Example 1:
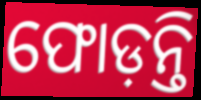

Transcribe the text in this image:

ଫୋଡ଼ନ୍ତି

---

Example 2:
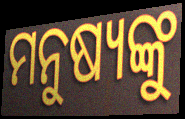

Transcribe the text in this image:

ମନୁଷ୍ୟଙ୍କୁ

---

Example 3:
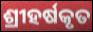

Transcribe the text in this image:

ଶ୍ରୀହର୍ଷକୃତ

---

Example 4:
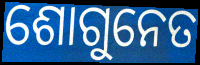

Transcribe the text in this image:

ଶୋଗୁନେତ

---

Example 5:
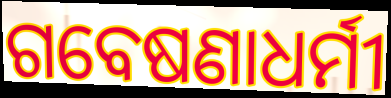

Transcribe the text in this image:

ଗବେଷଣାଧର୍ମୀ